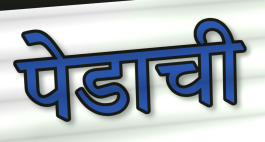
पेडाची